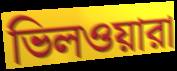
ভিলওয়ারা